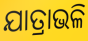
ଯାତ୍ରାଭଳି